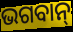
ଭଗବାନ୍